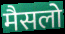
मैसलो